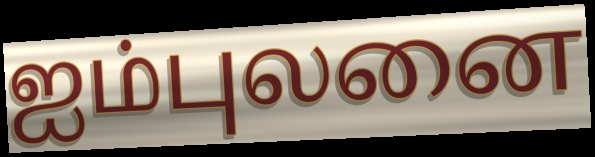
ஐம்புலனை